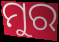
ମୁର